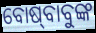
ବୋଷ୍‍ବାବୁଙ୍କ